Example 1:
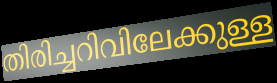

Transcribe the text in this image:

തിരിച്ചറിവിലേക്കുള്ള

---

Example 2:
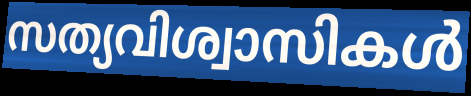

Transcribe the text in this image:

സത്യവിശ്വാസികൾ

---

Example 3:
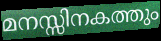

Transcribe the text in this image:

മനസ്സിനകത്തും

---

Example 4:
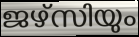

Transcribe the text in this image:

ജഴ്സിയും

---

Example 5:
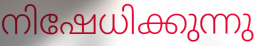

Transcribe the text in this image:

നിഷേധിക്കുന്നു